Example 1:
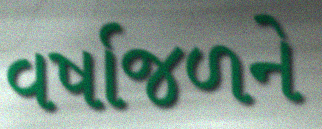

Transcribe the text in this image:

વર્ષાજળને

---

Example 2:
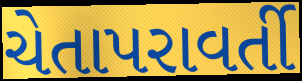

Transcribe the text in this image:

ચેતાપરાવર્તી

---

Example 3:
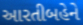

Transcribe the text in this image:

આરતીબહેને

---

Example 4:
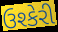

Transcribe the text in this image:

ઉશ્કેરી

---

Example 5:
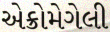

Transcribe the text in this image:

એક્રોમેગેલી